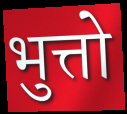
भुत्तो